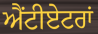
ਐਂਟੀਏਟਰਾਂ